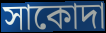
সাকোদা